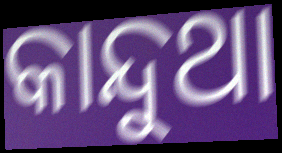
କାନ୍ଦୁଥା